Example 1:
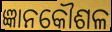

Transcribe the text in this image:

ଜ୍ଞାନକୌଶଳ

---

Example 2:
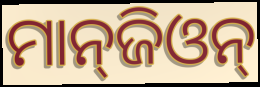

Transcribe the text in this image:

ମାନ୍‌ଜିଓନ୍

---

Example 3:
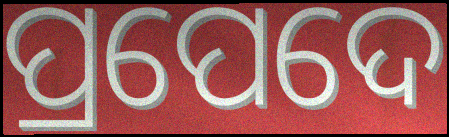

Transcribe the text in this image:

ପ୍ରପେଦେ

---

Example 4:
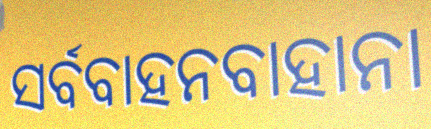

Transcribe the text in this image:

ସର୍ବବାହନବାହାନା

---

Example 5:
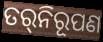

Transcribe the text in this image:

ତର୍‌ନିରୂପଣ